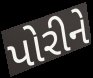
પોરીને